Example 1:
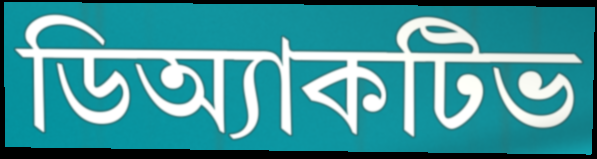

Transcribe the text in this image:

ডিঅ্যাকটিভ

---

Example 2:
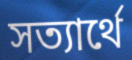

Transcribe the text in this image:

সত্যার্থে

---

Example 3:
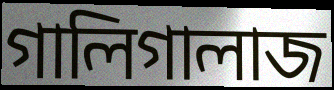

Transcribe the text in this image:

গালিগালাজ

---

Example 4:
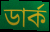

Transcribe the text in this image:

ডার্ক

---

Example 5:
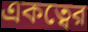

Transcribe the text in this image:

একত্বের